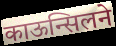
काऊन्सिलने